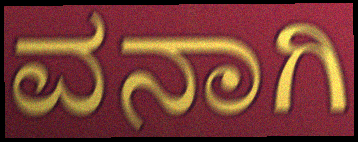
ವನಾಗಿ